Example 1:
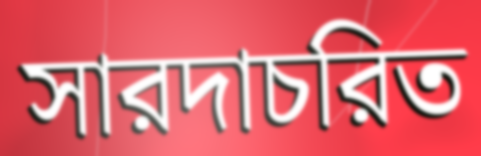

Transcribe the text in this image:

সারদাচরিত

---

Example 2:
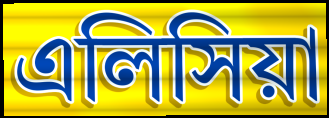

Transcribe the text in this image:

এলিসিয়া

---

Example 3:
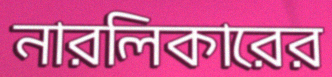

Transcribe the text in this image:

নারলিকারের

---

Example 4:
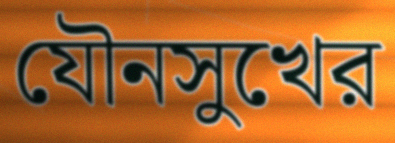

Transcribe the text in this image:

যৌনসুখের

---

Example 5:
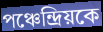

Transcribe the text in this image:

পঞ্চেন্দ্রিয়কে